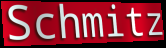
Schmitz